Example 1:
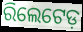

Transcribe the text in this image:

ରିଲେଟେଡ଼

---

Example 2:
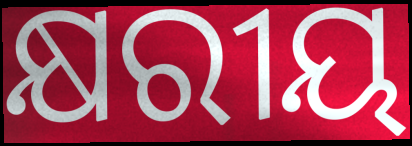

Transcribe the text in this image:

କ୍ଷରୀୟ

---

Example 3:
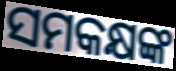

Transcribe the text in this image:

ସମକକ୍ଷଙ୍କ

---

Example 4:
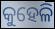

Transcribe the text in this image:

କୁହେଳି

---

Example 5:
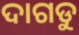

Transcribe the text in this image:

ଦାଗଡୁ